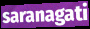
saranagati